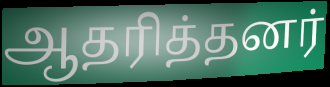
ஆதரித்தனர்